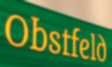
Obstfeld